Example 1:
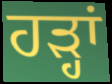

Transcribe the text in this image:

ਹਡ਼੍ਹਾਂ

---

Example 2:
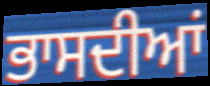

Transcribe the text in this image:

ਭਾਸਦੀਆਂ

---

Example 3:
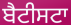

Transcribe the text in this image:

ਬੈਟੀਸਟਾ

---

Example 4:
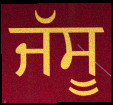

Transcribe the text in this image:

ਜੱਸੂ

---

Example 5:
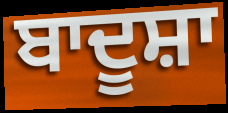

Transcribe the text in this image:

ਬਾਦੂਸ਼ਾ